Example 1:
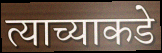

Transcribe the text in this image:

त्याच्याकडे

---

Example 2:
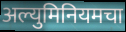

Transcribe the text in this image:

अल्युमिनियमचा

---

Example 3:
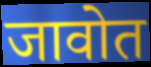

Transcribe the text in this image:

जावोत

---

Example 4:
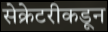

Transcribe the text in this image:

सेक्रेटरीकडून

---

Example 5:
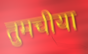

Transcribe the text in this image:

तुमचीया